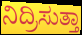
ನಿದ್ರಿಸುತ್ತಾ